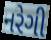
નરેગી